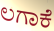
ಲಗಾಕೆ